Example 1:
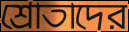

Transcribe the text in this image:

শ্রোতাদের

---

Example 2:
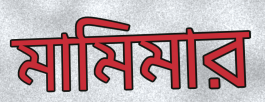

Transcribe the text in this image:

মামিমার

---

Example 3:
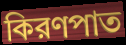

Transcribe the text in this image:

কিরণপাত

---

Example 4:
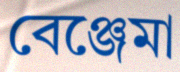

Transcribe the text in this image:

বেঞ্জেমা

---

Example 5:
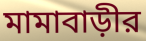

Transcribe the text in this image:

মামাবাড়ীর